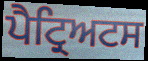
ਪੈਟ੍ਰਿਅਟਸ